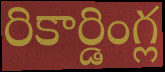
రికార్డింగ్ల